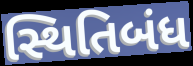
સ્થિતિબંધ